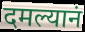
दमल्यानं